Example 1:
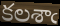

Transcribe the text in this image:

కలశాఁ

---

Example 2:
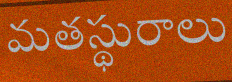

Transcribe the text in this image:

మతస్థురాలు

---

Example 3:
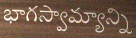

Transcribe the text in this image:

భాగస్వామ్యాన్ని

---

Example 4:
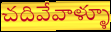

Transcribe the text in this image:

చదివేవాళ్ళూ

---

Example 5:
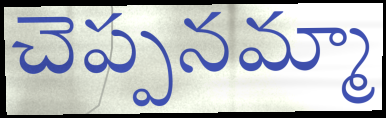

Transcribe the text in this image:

చెప్పనమ్మా